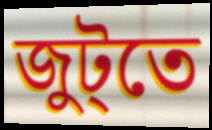
জুট্তে